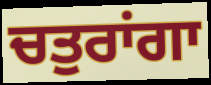
ਚਤੁਰਾਂਗਾ